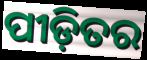
ପୀଡ଼ିତର